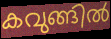
കവുങ്ങിൽ